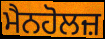
ਮੈਨਹੋਲਜ਼